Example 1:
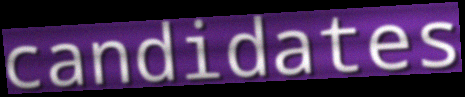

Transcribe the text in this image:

candidates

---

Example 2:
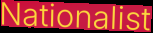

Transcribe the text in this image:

Nationalist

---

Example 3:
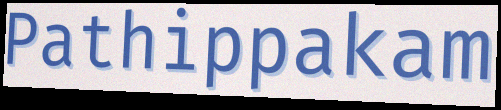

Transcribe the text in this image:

Pathippakam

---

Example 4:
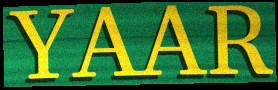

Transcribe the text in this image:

YAAR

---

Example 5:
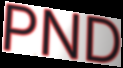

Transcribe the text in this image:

PND